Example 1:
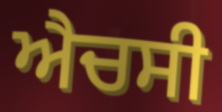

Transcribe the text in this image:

ਐਚਸੀ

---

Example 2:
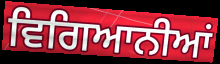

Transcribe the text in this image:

ਵਿਗਿਆਨੀਆਂ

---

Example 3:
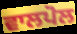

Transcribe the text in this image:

ਵਾਲਪੋਲ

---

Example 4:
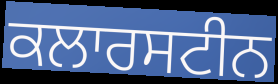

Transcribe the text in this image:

ਕਲਾਰਸਟੀਨ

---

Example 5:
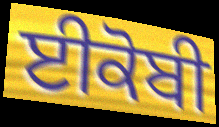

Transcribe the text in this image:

ਈਕੋਬੀ